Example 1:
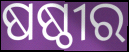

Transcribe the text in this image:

ଷଷ୍ଠୀର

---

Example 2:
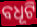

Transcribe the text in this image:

ବଧୂଟି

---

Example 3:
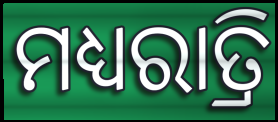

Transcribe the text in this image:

ମଧ୍ଯରାତ୍ରି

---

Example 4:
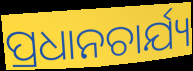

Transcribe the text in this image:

ପ୍ରଧାନଚାର୍ଯ୍ୟ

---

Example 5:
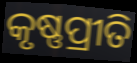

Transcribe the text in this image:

କୃଷ୍ଣପ୍ରୀତି